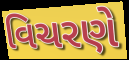
વિચરણે